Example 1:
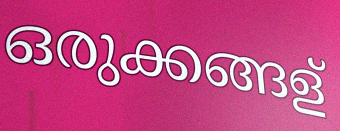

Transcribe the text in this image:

ഒരുക്കങ്ങള്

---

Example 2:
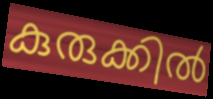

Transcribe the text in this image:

കുരുക്കിൽ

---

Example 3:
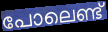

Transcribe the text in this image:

പോലെണ്ട്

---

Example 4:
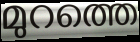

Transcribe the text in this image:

മുറത്തെ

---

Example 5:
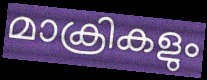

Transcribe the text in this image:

മാക്രികളും